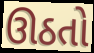
ઊઠતો